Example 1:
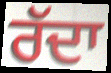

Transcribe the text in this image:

ਰੱਦਾ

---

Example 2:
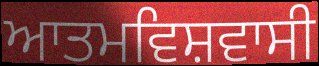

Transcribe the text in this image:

ਆਤਮਵਿਸ਼ਵਾਸੀ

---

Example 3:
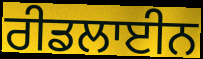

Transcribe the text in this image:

ਰੀਡਲਾਈਨ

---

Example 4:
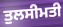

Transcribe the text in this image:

ਤੁਲਸੀਮਤੀ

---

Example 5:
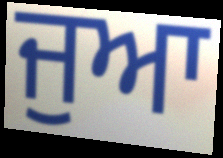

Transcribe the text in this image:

ਜੁਆ